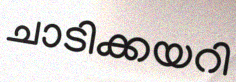
ചാടിക്കയറി